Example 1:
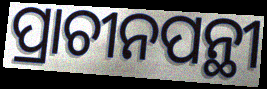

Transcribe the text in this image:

ପ୍ରାଚୀନପନ୍ଥୀ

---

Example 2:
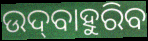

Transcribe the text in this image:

ଉଦ୍‌ବାହୁରିବ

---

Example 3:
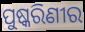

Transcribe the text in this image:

ପୁଷ୍କରିଣୀର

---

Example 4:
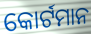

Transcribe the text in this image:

କୋର୍ଟମାନ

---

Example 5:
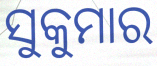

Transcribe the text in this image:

ସୁକୁମାର